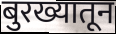
बुरख्यातून